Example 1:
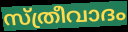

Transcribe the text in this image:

സ്ത്രീവാദം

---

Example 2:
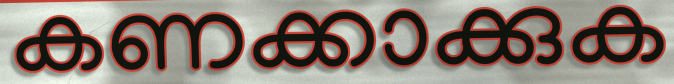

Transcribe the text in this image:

കണക്കാക്കുക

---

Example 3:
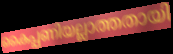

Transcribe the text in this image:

കൈപ്പണിയല്ലാത്തതായി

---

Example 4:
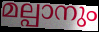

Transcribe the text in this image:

മല്പാനും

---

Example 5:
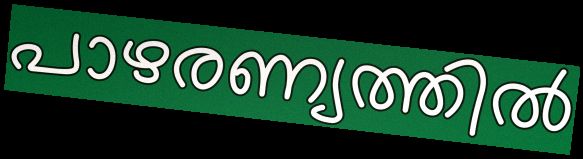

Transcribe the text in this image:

പാഴരണ്യത്തിൽ